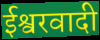
ईश्वरवादी